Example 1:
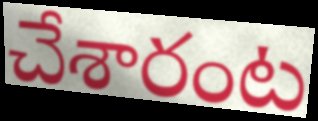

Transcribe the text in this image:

చేశారంట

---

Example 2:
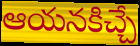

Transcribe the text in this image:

ఆయనకిచ్చే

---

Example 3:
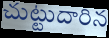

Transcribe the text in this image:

చుట్టుదారిన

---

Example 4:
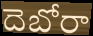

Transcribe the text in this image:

దెబోరా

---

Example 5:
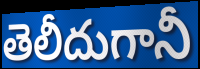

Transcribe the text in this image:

తెలీదుగానీ